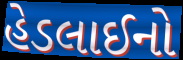
હેડલાઈનો